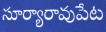
సూర్యారావుపేట